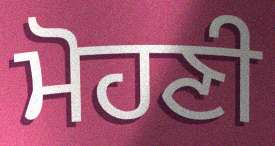
ਮੋਹਣੀ